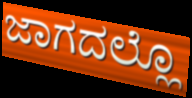
ಜಾಗದಲ್ಲೊ